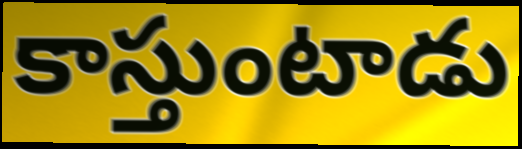
కాస్తుంటాడు